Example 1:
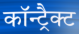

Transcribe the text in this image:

कॉन्ट्रैक्ट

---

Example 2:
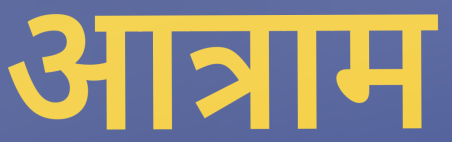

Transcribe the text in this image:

आत्राम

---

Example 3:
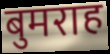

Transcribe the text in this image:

बुमराह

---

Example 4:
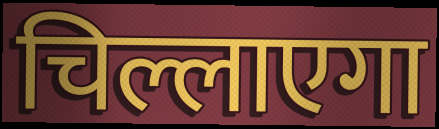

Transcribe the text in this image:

चिल्लाएगा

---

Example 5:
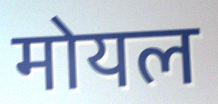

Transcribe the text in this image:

मोयल